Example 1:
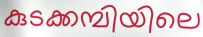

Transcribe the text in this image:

കുടക്കമ്പിയിലെ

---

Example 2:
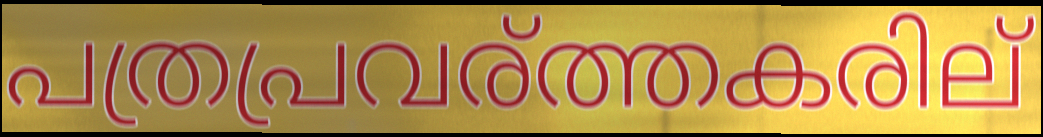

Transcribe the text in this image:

പത്രപ്രവര്ത്തകരില്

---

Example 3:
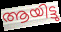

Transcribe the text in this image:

ആയിട്ടു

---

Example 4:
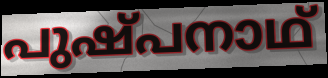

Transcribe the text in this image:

പുഷ്പനാഥ്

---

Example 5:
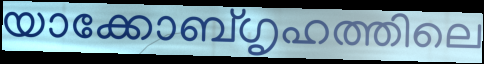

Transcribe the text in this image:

യാക്കോബ്ഗൃഹത്തിലെ